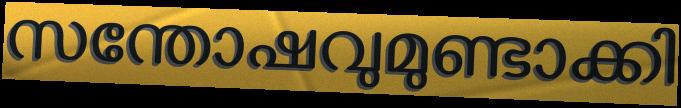
സന്തോഷവുമുണ്ടാക്കി